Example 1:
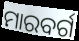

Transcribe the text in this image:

ମାରବର୍ଗ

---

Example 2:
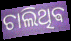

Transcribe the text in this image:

ଚାଲିଥିଵ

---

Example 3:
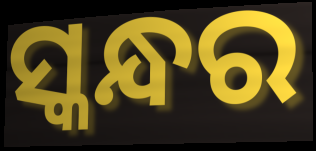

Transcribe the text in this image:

ସ୍କନ୍ଧର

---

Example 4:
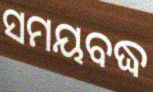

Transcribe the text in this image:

ସମୟବଦ୍ଧ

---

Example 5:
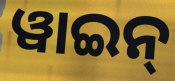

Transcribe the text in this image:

ୱାଇନ୍